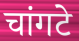
चांगटे